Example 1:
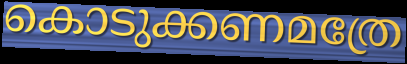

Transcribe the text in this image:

കൊടുക്കണമത്രേ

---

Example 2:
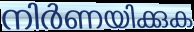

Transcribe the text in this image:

നിർണയിക്കുക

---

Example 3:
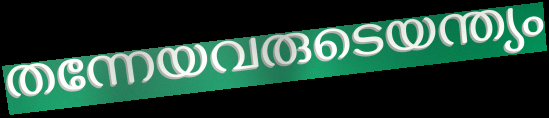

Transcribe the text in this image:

തന്നേയവരുടെയന്ത്യം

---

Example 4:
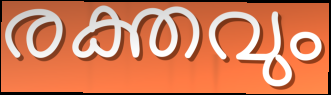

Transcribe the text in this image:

രക്തവും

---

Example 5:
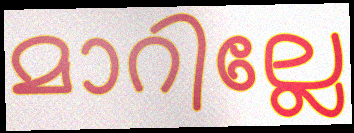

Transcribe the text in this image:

മാറില്ലേ